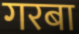
गरबा